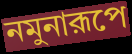
নমুনারূপে